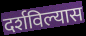
दर्शविल्यास